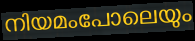
നിയമംപോലെയും